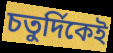
চতুর্দিকেই